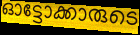
ഓട്ടോക്കാരുടെ